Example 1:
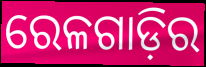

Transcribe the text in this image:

ରେଳଗାଡ଼ିର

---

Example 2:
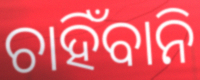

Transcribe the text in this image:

ଚାହିଁବାନି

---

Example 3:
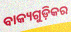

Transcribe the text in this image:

ବାକ୍ୟଗୁଡ଼ିକର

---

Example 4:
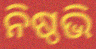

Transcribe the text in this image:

ନିଷ୍ଠଭି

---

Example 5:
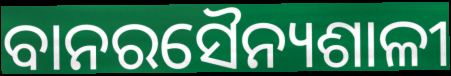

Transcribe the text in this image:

ବାନରସୈନ୍ୟଶାଳୀ